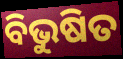
ବିଭୁଷିତ